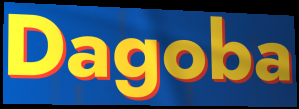
Dagoba